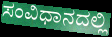
ಸಂವಿಧಾನದಲ್ಲಿ